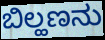
ಬಿಲ್ಹಣನು